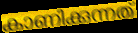
കാണിക്കുന്നത്